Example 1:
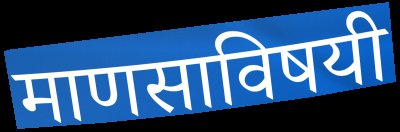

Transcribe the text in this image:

माणसाविषयी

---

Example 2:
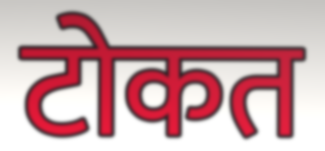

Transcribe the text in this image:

टोकत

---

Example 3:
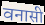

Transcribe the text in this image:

वनासी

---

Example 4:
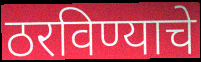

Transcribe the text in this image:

ठरविण्याचे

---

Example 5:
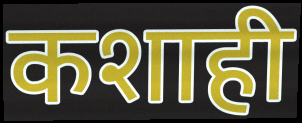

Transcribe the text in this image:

कशाही